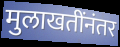
मुलाखतींनंतर